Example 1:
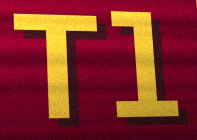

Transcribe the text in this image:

Tl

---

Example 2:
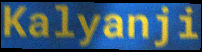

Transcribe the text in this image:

Kalyanji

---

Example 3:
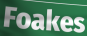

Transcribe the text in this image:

Foakes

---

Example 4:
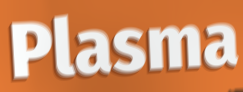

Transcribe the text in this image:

Plasma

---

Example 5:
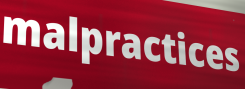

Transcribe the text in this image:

malpractices